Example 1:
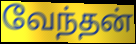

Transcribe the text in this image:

வேந்தன்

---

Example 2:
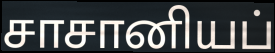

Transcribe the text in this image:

சாசானியப்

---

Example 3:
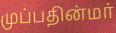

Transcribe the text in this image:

முப்பதின்மர்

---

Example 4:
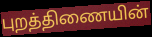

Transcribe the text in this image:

புறத்திணையின்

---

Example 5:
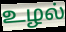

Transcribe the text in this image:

உழல்